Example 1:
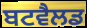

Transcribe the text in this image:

ਬਟਵੈਲਡ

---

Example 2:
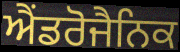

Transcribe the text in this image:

ਐਂਡਰੋਜੈਨਿਕ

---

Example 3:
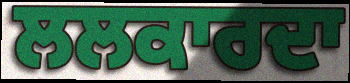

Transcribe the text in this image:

ਲਲਕਾਰਦਾ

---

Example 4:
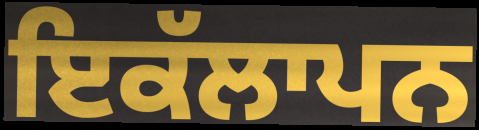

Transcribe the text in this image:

ਇਕੱਲਾਪਨ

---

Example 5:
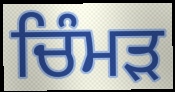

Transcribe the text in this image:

ਚਿੰਮੜ